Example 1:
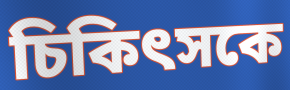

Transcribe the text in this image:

চিকিৎসকে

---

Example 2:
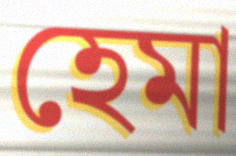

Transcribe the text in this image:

হেমা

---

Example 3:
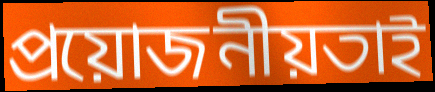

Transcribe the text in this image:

প্ৰয়োজনীয়তাই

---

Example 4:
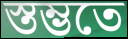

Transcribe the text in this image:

স্তম্ভতে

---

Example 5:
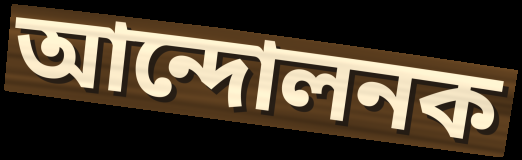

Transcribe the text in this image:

আন্দোলনক